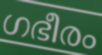
ഗഭീരം